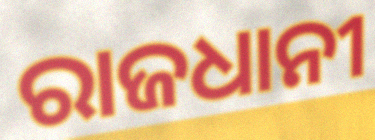
ରାଜଧାନୀ